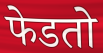
फेडतो